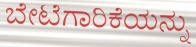
ಬೇಟೆಗಾರಿಕೆಯನ್ನು